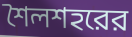
শৈলশহরের